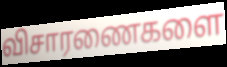
விசாரணைகளை